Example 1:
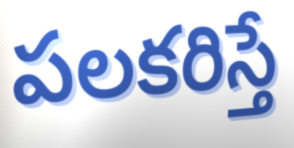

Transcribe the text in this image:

పలకరిస్తే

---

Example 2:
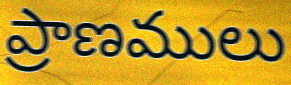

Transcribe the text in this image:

ప్రాణములు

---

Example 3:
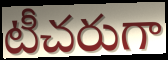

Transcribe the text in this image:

టీచరుగా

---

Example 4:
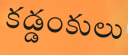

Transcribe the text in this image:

కడ్డంకులు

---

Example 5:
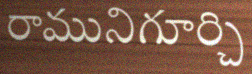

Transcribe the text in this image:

రామునిగూర్చి